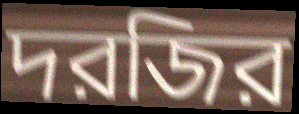
দরজির